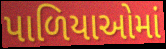
પાળિયાઓમાં